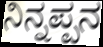
ನಿನ್ನಪ್ಪನ